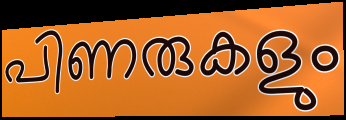
പിണരുകളും